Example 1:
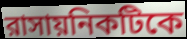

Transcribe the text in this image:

রাসায়নিকটিকে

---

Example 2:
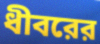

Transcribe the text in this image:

ধীবরের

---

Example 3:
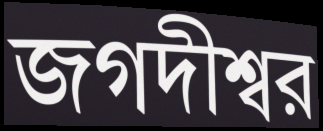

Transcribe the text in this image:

জগদীশ্বর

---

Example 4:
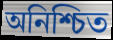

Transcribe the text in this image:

অনিশ্চিত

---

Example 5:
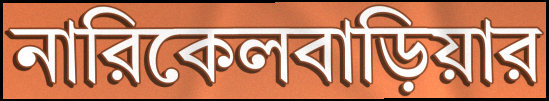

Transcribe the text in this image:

নারিকেলবাড়িয়ার